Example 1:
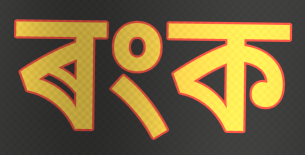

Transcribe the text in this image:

ৰংক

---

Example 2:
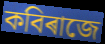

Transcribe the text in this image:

কবিৰাজে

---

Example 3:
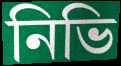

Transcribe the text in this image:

নিভি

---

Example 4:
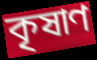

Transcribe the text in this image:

কৃষাণ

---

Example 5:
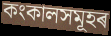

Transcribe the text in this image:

কংকালসমূহৰ